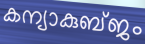
കന്യാകുബ്ജം